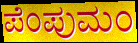
ಪೆಂಪುಮಂ